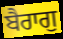
ਬੈਰਾਗੁ